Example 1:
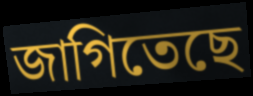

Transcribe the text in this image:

জাগিতেছে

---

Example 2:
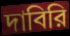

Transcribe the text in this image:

দাবিরি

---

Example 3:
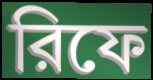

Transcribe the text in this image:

রিফে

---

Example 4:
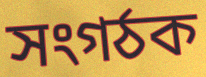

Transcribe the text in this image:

সংগঠক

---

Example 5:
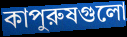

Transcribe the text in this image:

কাপুরুষগুলো